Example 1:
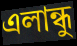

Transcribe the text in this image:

এলান্ধু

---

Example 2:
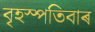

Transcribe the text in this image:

বৃহস্পতিবাৰ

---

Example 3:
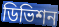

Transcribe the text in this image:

ডিভিশন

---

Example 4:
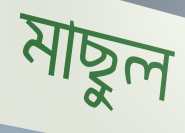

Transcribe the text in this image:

মাছুল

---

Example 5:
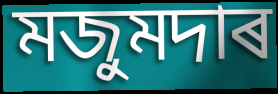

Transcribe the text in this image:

মজুমদাৰ